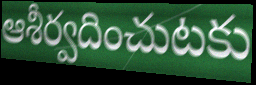
ఆశీర్వదించుటకు